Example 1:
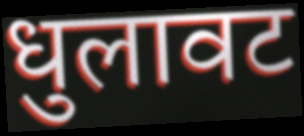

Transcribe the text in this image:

धुलावट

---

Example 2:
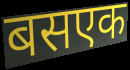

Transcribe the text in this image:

बसएक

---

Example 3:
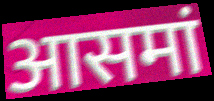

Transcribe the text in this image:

आसमां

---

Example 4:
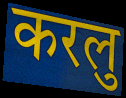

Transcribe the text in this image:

करलु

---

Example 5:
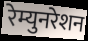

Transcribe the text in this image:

रेम्युनरेशन